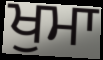
ਖੁਮਾ